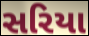
સરિયા